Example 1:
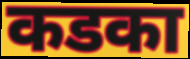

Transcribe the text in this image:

कडका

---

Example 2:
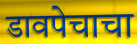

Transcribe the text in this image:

डावपेचाचा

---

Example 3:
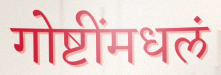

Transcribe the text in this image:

गोष्टींमधलं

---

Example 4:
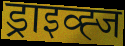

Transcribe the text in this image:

ड्राइव्ह्ज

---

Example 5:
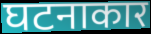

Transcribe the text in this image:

घटनाकार